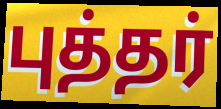
புத்தர்